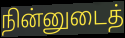
நின்னுடைத்